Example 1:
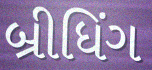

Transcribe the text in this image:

બ્રીધિંગ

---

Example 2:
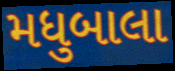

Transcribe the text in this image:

મધુબાલા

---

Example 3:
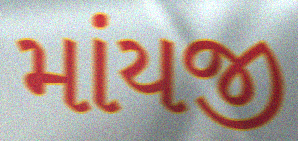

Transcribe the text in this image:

માંયજી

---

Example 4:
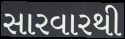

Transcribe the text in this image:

સારવારથી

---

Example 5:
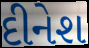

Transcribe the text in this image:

દીનેશ